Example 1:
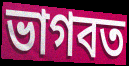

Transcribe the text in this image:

ভাগবত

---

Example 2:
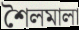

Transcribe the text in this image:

শৈলমালা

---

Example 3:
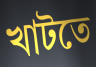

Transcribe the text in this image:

খাটতে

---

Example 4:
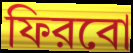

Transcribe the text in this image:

ফিরবো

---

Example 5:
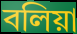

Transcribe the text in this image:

বলিয়া